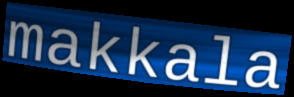
makkala